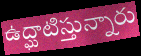
ఉద్ఘాటిస్తున్నారు